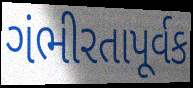
ગંભીરતાપૂર્વક